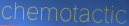
chemotactic